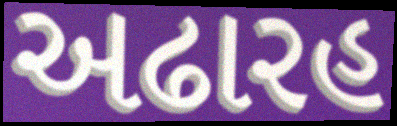
અઢારહ